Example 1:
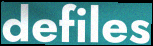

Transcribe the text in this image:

defiles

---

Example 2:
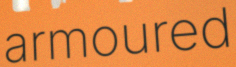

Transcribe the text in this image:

armoured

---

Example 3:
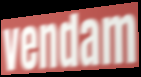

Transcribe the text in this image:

vendam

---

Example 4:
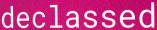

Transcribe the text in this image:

declassed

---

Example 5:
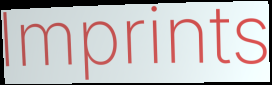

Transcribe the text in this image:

Imprints